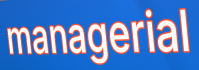
managerial